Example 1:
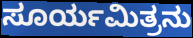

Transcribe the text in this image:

ಸೂರ್ಯಮಿತ್ರನು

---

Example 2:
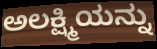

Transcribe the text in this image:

ಅಲಕ್ಷ್ಮಿಯನ್ನು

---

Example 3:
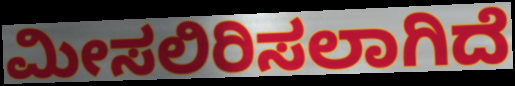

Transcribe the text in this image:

ಮೀಸಲಿರಿಸಲಾಗಿದೆ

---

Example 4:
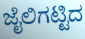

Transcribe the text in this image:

ಜೈಲಿಗಟ್ಟಿದ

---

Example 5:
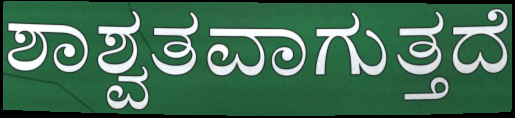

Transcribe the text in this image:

ಶಾಶ್ವತವಾಗುತ್ತದೆ